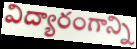
విద్యారంగాన్ని